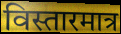
विस्तारमात्र